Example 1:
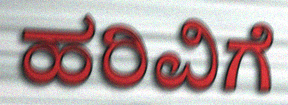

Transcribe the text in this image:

ಹರಿವಿಗೆ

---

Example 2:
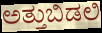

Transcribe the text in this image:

ಅತ್ತುಬಿಡಲಿ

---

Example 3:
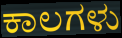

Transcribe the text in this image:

ಕಾಲಗಳು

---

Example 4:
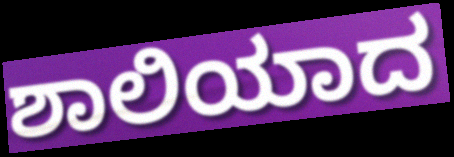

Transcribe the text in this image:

ಶಾಲಿಯಾದ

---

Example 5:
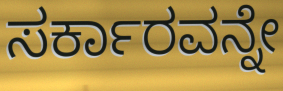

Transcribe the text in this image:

ಸರ್ಕಾರವನ್ನೇ